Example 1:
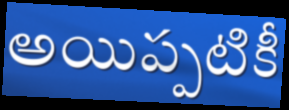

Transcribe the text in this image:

అయిప్పటికీ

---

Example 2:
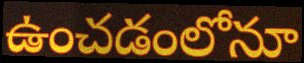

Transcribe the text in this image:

ఉంచడంలోనూ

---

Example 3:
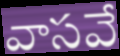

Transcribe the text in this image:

వాసవే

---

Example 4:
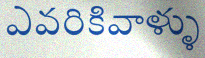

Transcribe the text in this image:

ఎవరికివాళ్ళు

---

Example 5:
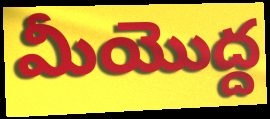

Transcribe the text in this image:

మీయొద్ద